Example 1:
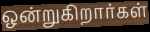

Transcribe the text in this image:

ஒன்றுகிறார்கள்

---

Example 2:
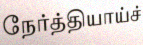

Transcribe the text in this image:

நேர்த்தியாய்ச்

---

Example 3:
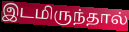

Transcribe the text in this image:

இடமிருந்தால்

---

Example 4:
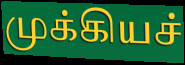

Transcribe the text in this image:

முக்கியச்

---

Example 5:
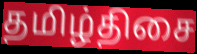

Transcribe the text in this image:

தமிழ்திசை